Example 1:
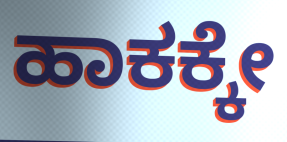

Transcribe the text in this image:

ಹಾಕಕ್ಕೇ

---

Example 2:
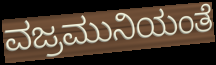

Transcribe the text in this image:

ವಜ್ರಮುನಿಯಂತೆ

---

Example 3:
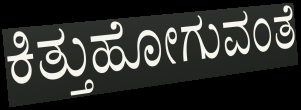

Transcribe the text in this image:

ಕಿತ್ತುಹೋಗುವಂತೆ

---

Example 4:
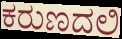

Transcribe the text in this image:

ಕರುಣದಲಿ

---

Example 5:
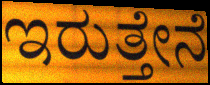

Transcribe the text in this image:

ಇರುತ್ತೇನೆ